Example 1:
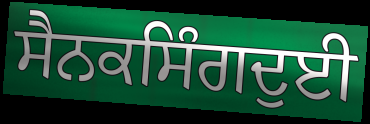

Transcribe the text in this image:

ਸੈਨਕਸਿੰਗਦੁਈ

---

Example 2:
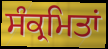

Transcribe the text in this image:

ਸੰਕ੍ਰਮਿਤਾਂ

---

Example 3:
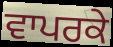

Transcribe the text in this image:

ਵਾਪਰਕੇ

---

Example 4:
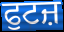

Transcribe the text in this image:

ਫੁਟਜ਼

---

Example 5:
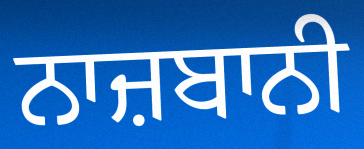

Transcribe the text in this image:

ਨਾਜ਼ਬਾਨੀ